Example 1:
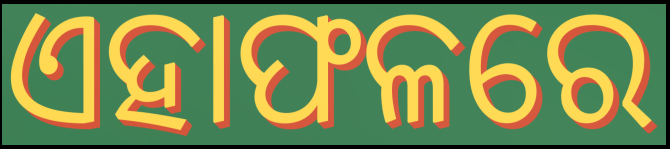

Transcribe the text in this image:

ଏହାଫଳରେ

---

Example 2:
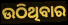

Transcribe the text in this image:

ଉଠିଥିବାର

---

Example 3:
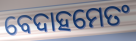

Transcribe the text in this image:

ବେଦାହମେତଂ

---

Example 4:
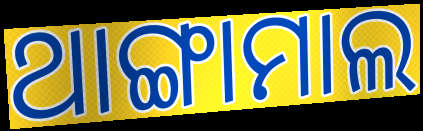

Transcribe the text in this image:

ଥାଙ୍ଗାମାଲ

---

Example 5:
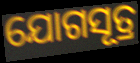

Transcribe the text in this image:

ଯୋଗସୂତ୍ର